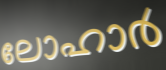
ലോഹാർ